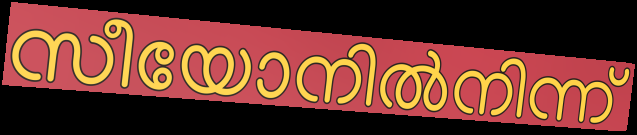
സീയോനിൽനിന്ന്